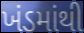
ખંડમાંથી